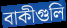
বাকীগুলি